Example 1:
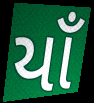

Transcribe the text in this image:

યાઁ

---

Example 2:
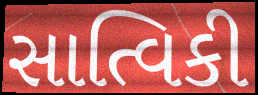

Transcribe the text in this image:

સાત્વિકી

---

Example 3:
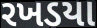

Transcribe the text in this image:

રખડયા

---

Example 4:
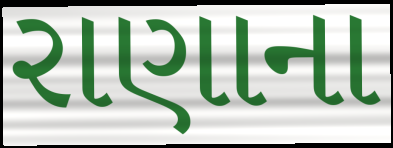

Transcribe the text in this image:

રાણાના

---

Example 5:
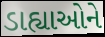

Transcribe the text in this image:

ડાહ્યાઓને